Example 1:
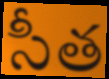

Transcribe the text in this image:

సీత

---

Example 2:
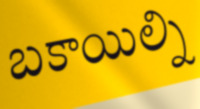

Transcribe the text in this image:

బకాయిల్ని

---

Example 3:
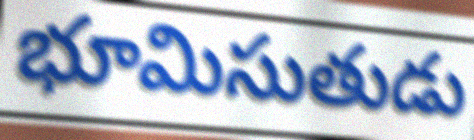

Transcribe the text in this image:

భూమిసుతుడు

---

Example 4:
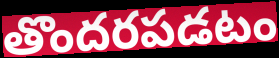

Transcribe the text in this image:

తొందరపడటం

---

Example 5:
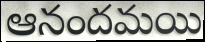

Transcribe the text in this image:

ఆనందమయి